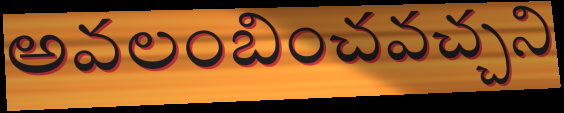
అవలంబించవచ్చని